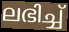
ലഭിച്ച്